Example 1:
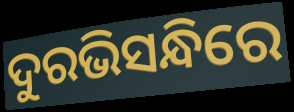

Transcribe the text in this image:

ଦୁରଭିସନ୍ଧିରେ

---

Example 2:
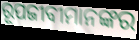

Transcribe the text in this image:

ରୂପଜୀବୀମାନଙ୍କର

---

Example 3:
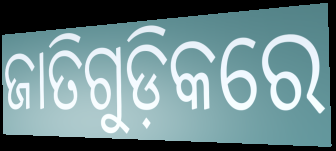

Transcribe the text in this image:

ଜାତିଗୁଡ଼ିକରେ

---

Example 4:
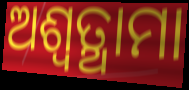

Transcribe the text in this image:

ଅଶ୍ଵତ୍ଥାମା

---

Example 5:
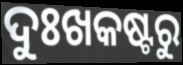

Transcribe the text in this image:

ଦୁଃଖକଷ୍ଟରୁ